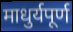
माधुर्यपूर्ण